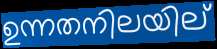
ഉന്നതനിലയില്